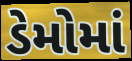
ડેમોમાં